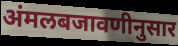
अंमलबजावणीनुसार